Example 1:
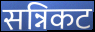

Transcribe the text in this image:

सन्निकट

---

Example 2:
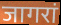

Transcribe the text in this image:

जागरां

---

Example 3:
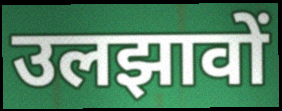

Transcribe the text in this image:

उलझावों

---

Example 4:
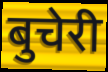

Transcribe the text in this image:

बुचेरी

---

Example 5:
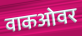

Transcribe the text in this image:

वाकओवर